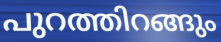
പുറത്തിറങ്ങും